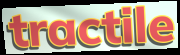
tractile